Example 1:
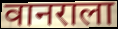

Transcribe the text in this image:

वानराला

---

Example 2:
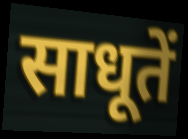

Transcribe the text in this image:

साधूतें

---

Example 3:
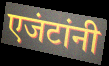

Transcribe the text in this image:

एजंटांनी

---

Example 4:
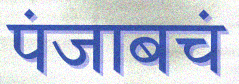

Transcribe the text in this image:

पंजाबचं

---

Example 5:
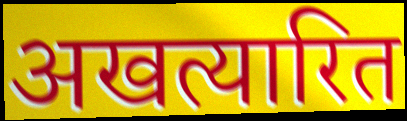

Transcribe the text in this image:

अखत्यारित